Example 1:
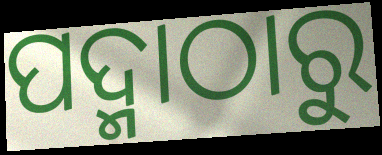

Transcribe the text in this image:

ପଦ୍ମାଠାରୁ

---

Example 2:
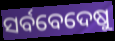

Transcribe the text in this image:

ସର୍ବବେଦେଷୁ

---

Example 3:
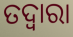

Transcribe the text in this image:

ତଦ୍ବାରା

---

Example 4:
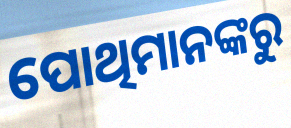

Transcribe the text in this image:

ପୋଥିମାନଙ୍କରୁ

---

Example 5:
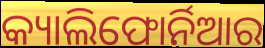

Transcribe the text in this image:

କ୍ୟାଲିଫୋର୍ନିଆର